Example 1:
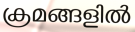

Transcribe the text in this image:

ക്രമങ്ങളിൽ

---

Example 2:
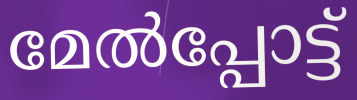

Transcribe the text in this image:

മേൽപ്പോട്ട്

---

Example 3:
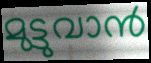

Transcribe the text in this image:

മുട്ടുവാൻ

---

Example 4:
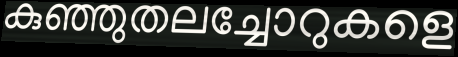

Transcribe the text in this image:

കുഞ്ഞുതലച്ചോറുകളെ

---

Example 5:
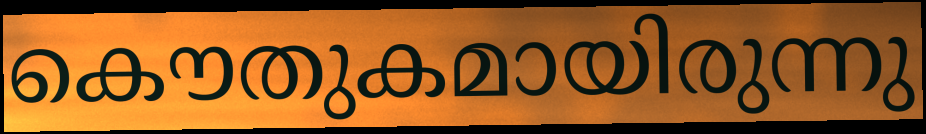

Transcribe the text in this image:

കൌതുകമായിരുന്നു